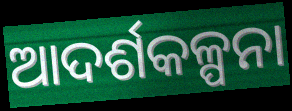
ଆଦର୍ଶକଳ୍ପନା